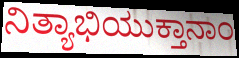
ನಿತ್ಯಾಭಿಯುಕ್ತಾನಾಂ